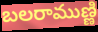
బలరాముణ్ణి